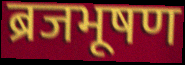
ब्रजभूषण